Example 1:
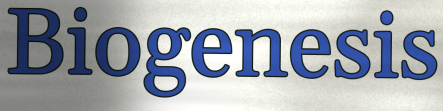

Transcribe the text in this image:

Biogenesis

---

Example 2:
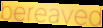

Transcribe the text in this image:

bereaved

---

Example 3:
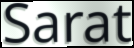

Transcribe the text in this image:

Sarat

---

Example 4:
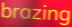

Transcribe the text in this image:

brazing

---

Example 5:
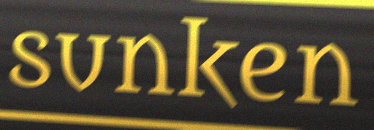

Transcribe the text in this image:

sunken